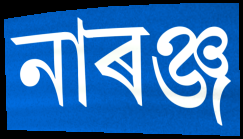
নাৰঞ্জ